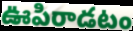
ఊపిరాడటం